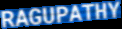
RAGUPATHY